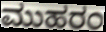
ಮುಹರಂ